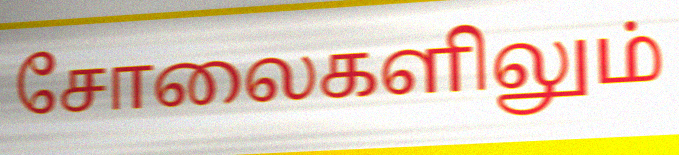
சோலைகளிலும்